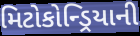
મિટોકોન્ડ્રિયાની